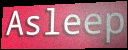
Asleep